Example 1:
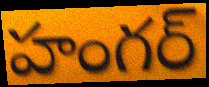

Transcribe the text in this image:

హంగర్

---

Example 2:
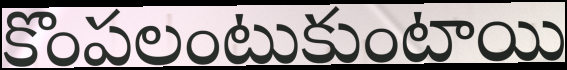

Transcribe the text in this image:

కొంపలంటుకుంటాయి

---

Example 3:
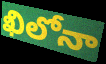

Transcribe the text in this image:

ఖిలోనా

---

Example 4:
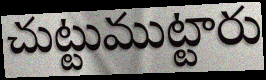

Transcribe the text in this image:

చుట్టుముట్టారు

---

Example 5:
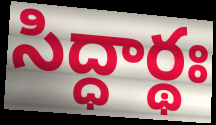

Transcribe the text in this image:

సిద్ధార్థః